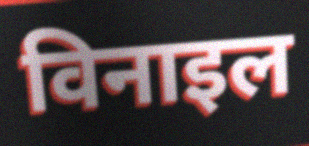
विनाइल